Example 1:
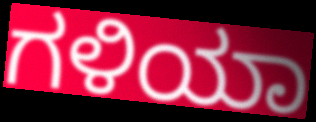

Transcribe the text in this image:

ಗಳಿಯಾ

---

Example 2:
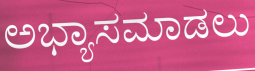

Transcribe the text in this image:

ಅಭ್ಯಾಸಮಾಡಲು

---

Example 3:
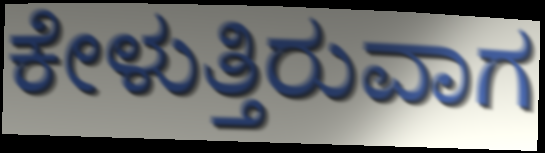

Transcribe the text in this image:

ಕೇಳುತ್ತಿರುವಾಗ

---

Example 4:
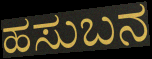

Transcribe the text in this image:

ಹಸುಬನ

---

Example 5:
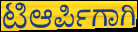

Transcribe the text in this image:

ಟಿಆರ್ಪಿಗಾಗಿ